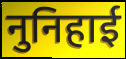
नुनिहाई